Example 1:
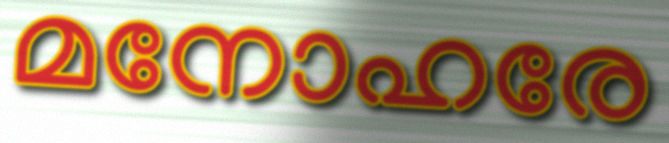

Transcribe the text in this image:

മനോഹരേ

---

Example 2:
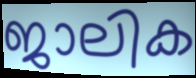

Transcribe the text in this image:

ജാലിക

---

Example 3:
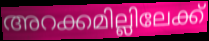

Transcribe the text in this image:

അറക്കമില്ലിലേക്ക്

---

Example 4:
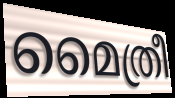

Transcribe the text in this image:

മൈത്രീ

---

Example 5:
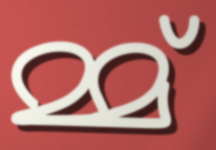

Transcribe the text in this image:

മ്മ്